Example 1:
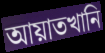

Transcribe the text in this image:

আয়াতখানি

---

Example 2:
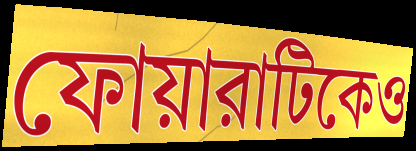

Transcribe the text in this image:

ফোয়ারাটিকেও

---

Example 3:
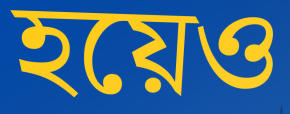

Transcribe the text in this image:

হয়েও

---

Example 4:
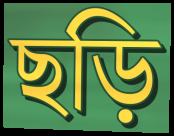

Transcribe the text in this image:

ছড়ি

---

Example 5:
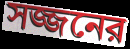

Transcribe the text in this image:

সজ্জনের